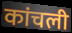
कांचली